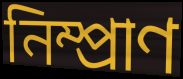
নিম্প্রাণ